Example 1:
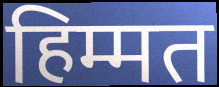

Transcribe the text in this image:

हिम्मत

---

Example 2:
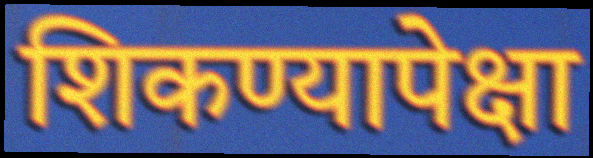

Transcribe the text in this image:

शिकण्यापेक्षा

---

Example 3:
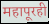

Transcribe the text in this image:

महापूरही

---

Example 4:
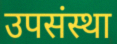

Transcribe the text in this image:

उपसंस्था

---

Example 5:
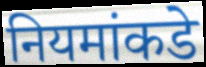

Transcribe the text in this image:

नियमांकडे